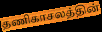
தணிகாசலத்தின்